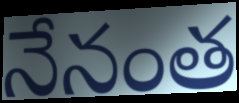
నేనంత